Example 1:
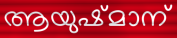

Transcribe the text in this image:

ആയുഷ്മാന്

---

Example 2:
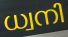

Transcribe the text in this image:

ധ്വനി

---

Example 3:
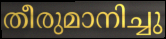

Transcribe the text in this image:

തീരുമാനിച്ചു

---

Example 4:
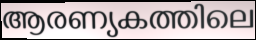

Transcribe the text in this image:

ആരണ്യകത്തിലെ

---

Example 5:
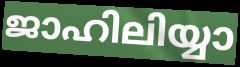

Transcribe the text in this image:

ജാഹിലിയ്യാ